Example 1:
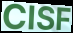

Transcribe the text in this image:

CISF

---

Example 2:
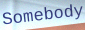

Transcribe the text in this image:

Somebody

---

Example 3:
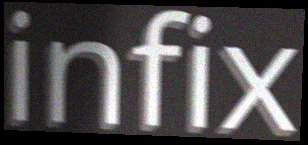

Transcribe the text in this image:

infix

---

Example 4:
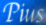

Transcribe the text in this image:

Pius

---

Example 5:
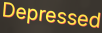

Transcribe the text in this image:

Depressed